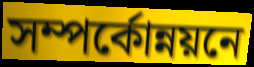
সম্পর্কোন্নয়নে